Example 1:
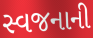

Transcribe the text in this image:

સ્વજનાની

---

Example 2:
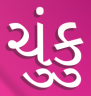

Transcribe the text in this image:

ચુંકુ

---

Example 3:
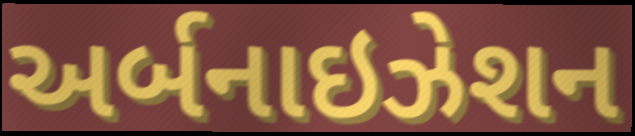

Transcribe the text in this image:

અર્બનાઇઝેશન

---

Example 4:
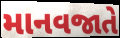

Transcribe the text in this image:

માનવજાતે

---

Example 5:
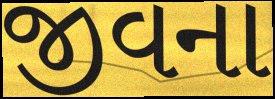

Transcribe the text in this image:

જીવના